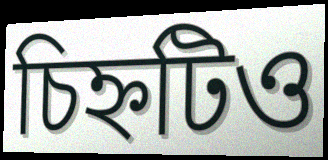
চিহ্নটিও